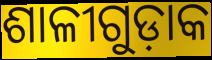
ଶାଳୀଗୁଡ଼ାକ